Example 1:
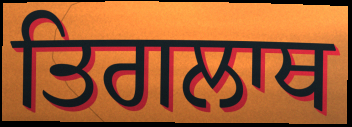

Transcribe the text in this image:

ਤਿਗਲਾਥ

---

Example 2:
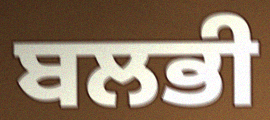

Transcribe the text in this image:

ਬਲਭੀ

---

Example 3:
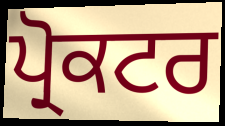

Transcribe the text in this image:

ਪ੍ਰੋਕਟਰ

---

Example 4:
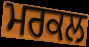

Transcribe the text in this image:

ਮਰਕਲ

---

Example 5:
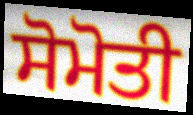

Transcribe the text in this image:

ਸੋਮੋਤੀ